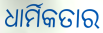
ଧାର୍ମିକତାର